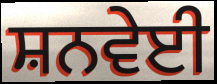
ਸ਼ਨਵੇਈ